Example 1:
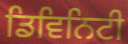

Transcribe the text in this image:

ਡਿਵਿਨਿਟੀ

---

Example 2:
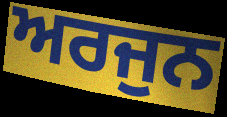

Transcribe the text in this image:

ਅਰਜੁਨ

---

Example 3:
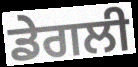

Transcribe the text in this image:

ਡੇਗਲੀ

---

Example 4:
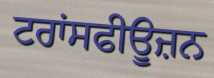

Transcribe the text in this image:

ਟਰਾਂਸਫੀਊਜ਼ਨ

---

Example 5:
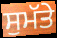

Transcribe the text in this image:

ਸੁਮੱਤੇ